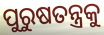
ପୁରୁଷତନ୍ତ୍ରକୁ